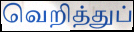
வெறித்துப்